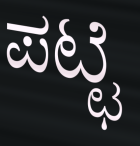
ಪಟ್ಟೆ